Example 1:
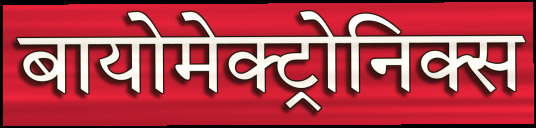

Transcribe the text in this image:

बायोमेक्ट्रोनिक्स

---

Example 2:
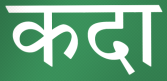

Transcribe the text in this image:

कदा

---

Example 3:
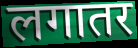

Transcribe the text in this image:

लगातर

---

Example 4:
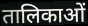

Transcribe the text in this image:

तालिकाओं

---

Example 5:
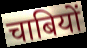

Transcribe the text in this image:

चाबियों